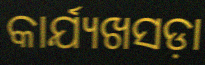
କାର୍ଯ୍ୟଖସଡ଼ା